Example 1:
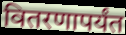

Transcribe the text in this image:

वितरणापर्यंत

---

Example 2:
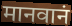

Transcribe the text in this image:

मानवानं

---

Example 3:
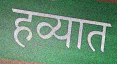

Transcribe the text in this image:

हव्यात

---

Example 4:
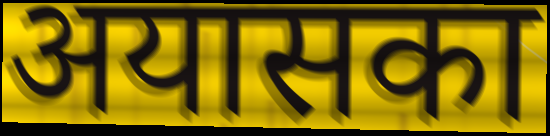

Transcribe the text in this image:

अयासका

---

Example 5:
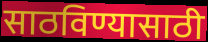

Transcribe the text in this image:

साठविण्यासाठी